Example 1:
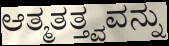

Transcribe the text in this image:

ಆತ್ಮತತ್ತ್ವವನ್ನು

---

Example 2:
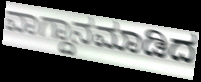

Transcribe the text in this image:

ವಾಗ್ದಾನಮಾಡಿದ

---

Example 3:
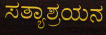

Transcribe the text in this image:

ಸತ್ಯಾಶ್ರಯನ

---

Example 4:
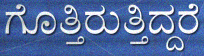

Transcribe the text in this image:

ಗೊತ್ತಿರುತ್ತಿದ್ದರೆ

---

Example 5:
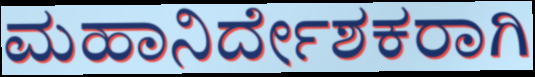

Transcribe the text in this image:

ಮಹಾನಿರ್ದೇಶಕರಾಗಿ